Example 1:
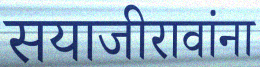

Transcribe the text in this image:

सयाजीरावांना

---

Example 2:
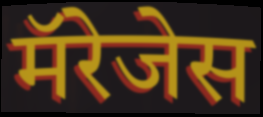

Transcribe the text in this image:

मॅरेजेस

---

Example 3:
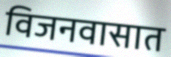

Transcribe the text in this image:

विजनवासात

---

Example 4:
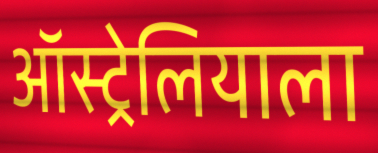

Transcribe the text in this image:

ऑस्ट्रेलियाला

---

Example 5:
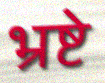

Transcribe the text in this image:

भ्रष्टे